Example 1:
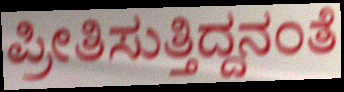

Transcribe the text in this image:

ಪ್ರೀತಿಸುತ್ತಿದ್ದನಂತೆ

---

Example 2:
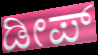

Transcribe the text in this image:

ಡೀಪ್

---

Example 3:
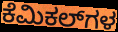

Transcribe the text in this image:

ಕೆಮಿಕಲ್‌ಗಳ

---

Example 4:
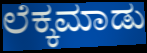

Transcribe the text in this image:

ಲೆಕ್ಕಮಾಡು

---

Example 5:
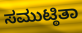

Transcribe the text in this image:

ಸಮುಟ್ಠಿತಾ